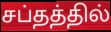
சப்தத்தில்